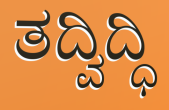
ತದ್ವಿದ್ಧಿ